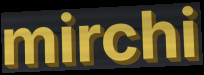
mirchi